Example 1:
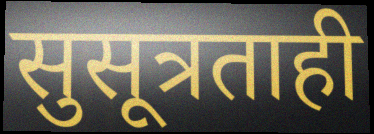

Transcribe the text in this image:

सुसूत्रताही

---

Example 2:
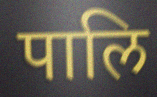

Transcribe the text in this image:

पालि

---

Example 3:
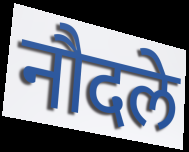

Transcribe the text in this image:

नौदले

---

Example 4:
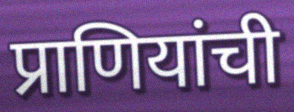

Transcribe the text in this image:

प्राणियांची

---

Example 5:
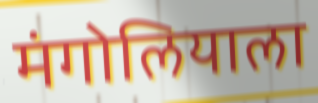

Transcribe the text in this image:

मंगोलियाला